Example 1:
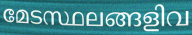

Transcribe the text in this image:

മേടസ്ഥലങ്ങളിവ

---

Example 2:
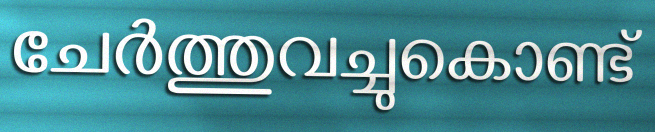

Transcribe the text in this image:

ചേർത്തുവച്ചുകൊണ്ട്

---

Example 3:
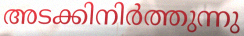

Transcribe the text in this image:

അടക്കിനിർത്തുന്നു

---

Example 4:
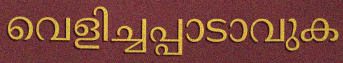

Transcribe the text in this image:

വെളിച്ചപ്പാടാവുക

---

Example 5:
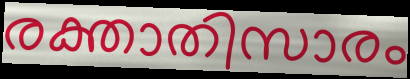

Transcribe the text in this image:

രക്താതിസാരം